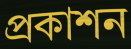
প্ৰকাশন